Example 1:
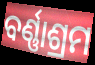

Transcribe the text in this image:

ବର୍ଣ୍ଣାଶ୍ରମ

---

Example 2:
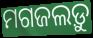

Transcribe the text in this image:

ମଗଜଲଡ଼ୁ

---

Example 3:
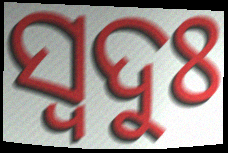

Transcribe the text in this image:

ସ୍ବଦୁଃ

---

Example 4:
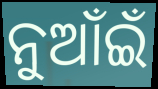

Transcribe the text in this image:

ନୁଆଁଇଁ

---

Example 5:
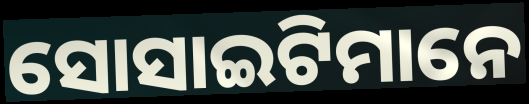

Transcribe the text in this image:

ସୋସାଇଟିମାନେ